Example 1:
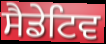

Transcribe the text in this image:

ਸੈਡੇਟਿਵ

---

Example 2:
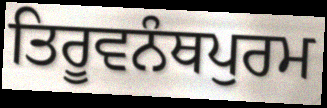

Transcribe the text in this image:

ਤਿਰੂਵਨੰਥਪੁਰਮ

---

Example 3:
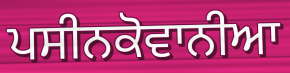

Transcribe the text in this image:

ਪਸੀਨਕੋਵਾਨੀਆ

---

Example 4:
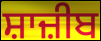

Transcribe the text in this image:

ਸ਼ਾਜ਼ੀਬ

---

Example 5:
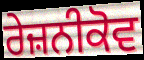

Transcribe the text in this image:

ਰੇਜ਼ਨੀਕੋਵ